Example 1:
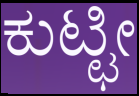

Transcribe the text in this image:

ಕುಟ್ಟೀ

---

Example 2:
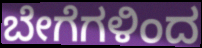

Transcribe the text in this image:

ಬೇಗೆಗಳಿಂದ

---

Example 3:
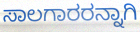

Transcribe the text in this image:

ಸಾಲಗಾರರನ್ನಾಗಿ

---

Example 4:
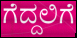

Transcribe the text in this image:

ಗೆದ್ದಲಿಗೆ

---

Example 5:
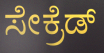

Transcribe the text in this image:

ಸೇಕ್ರೆಡ್